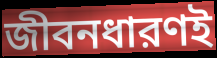
জীবনধারণই